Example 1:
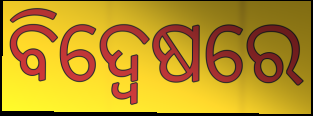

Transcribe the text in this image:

ବିଦ୍ଵେଷରେ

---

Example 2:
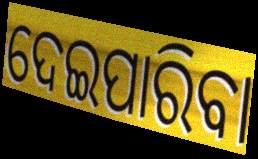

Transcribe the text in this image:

ଦେଇପାରିବା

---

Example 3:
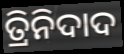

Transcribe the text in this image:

ତ୍ରିନିଦାଦ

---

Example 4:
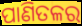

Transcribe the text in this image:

ପାଣିତଳର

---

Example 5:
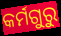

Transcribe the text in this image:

କର୍ମଗୁରୁ